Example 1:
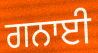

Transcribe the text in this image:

ਗਨਾਈ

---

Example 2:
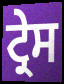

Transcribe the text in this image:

ਟ੍ਰੇਸ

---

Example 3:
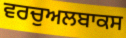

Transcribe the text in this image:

ਵਰਚੁਅਲਬਾਕਸ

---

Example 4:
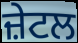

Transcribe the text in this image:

ਜ਼ੇਟਲ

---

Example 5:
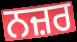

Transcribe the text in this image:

ਨਜ਼ਰ